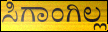
ಸಿಗಾಂಗಿಲ್ಲ